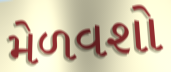
મેળવશો